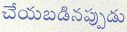
చేయబడినప్పుడు